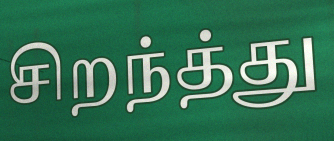
சிறந்த்து